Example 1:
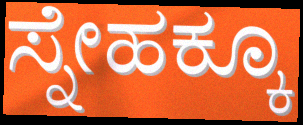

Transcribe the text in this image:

ಸ್ನೇಹಕ್ಕೂ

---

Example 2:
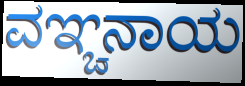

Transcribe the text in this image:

ವಞ್ಚನಾಯ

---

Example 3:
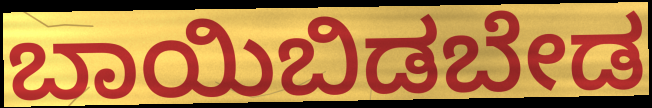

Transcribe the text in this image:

ಬಾಯಿಬಿಡಬೇಡ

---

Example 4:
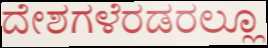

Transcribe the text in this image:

ದೇಶಗಳೆರಡರಲ್ಲೂ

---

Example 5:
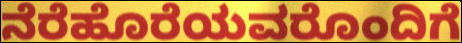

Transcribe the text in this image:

ನೆರೆಹೊರೆಯವರೊಂದಿಗೆ